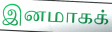
இனமாகக்